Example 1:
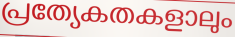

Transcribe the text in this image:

പ്രത്യേകതകളാലും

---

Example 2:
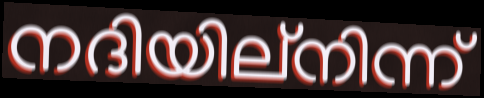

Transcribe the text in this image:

നദിയില്നിന്ന്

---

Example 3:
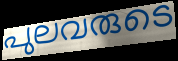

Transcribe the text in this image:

പുലവരുടെ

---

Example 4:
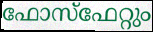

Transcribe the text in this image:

ഫോസ്ഫേറ്റും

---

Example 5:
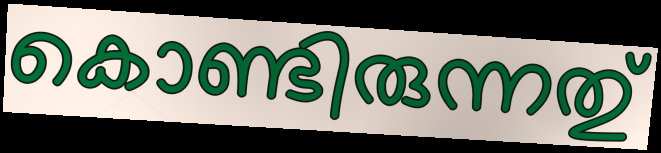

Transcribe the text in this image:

കൊണ്ടിരുന്നതു്